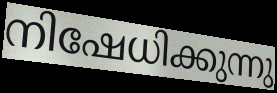
നിഷേധിക്കുന്നു